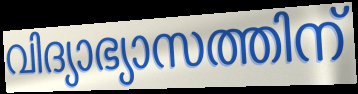
വിദ്യാഭ്യാസത്തിന്